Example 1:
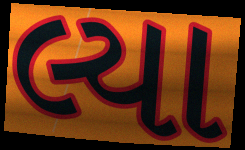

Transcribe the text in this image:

લ્યા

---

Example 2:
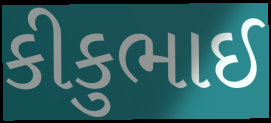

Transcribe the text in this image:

કીકુભાઈ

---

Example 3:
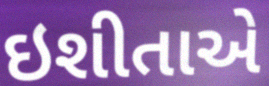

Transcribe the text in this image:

ઇશીતાએ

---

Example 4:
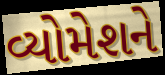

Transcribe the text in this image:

વ્યોમેશને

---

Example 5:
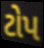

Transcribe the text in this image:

ટોપ